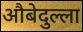
औबेदुल्ला